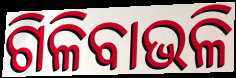
ଗିଳିବାଭଳି